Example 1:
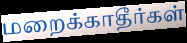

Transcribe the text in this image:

மறைக்காதீர்கள்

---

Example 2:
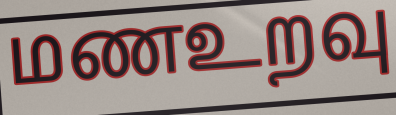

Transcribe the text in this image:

மணஉறவு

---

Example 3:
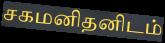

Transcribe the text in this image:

சகமனிதனிடம்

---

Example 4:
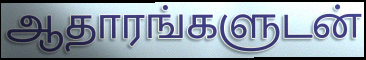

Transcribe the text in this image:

ஆதாரங்களுடன்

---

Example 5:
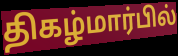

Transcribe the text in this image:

திகழ்மார்பில்